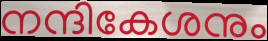
നന്ദികേശനും